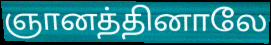
ஞானத்தினாலே